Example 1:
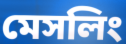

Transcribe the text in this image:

মেসলিং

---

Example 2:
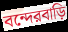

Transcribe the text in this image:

বন্দেরবাড়ি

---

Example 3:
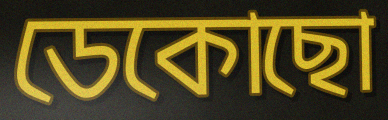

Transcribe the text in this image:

ডেকোছো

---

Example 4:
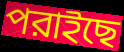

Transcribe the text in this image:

পরাইছে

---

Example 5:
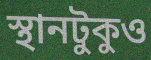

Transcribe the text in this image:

স্থানটুকুও